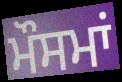
ਮੌਸਮਾਂ